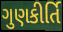
ગુણકીર્તિ